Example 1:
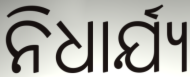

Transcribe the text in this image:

ନିଧାର୍ଯ୍ୟ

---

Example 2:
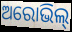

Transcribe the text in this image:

ଅରୋଭିଲ୍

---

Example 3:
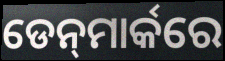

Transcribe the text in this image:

ଡେନ୍‍ମାର୍କରେ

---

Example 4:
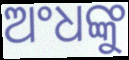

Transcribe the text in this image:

ଅଂଧଙ୍କୁ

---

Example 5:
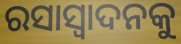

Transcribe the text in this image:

ରସାସ୍ୱାଦନକୁ